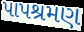
પાપશ્રમણ